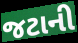
જટાની